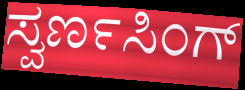
ಸ್ವರ್ಣಸಿಂಗ್